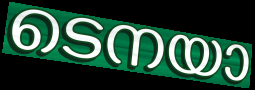
ടെനയാ